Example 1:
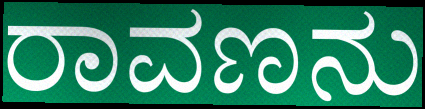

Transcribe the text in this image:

ರಾವಣನು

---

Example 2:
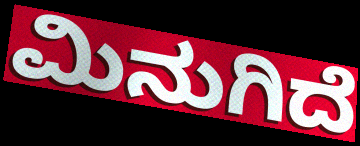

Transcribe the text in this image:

ಮಿನುಗಿದೆ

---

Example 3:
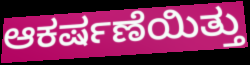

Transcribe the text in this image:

ಆಕರ್ಷಣೆಯಿತ್ತು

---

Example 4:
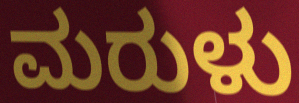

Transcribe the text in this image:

ಮರುಳು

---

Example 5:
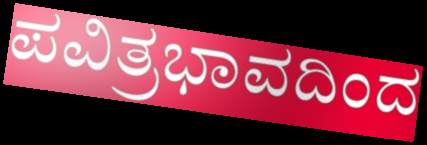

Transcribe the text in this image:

ಪವಿತ್ರಭಾವದಿಂದ